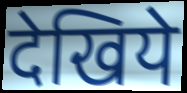
देखिये